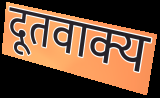
दूतवाक्य